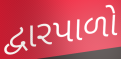
દ્વારપાળો